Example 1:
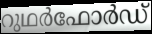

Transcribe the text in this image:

റുഥർഫോർഡ്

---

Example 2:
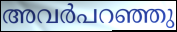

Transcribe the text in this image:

അവർപറഞ്ഞു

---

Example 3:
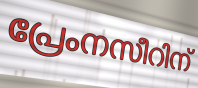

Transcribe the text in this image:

പ്രേംനസീറിന്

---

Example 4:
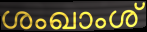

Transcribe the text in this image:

ശംഖാംശ്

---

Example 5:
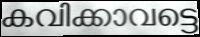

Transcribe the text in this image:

കവിക്കാവട്ടെ